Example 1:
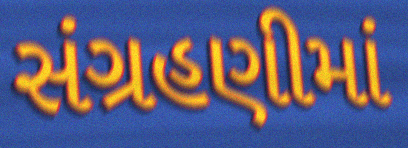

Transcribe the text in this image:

સંગ્રહણીમાં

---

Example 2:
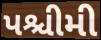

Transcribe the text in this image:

પશ્ચીમી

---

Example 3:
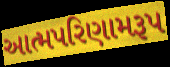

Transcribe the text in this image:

આત્મપરિણામરૂપ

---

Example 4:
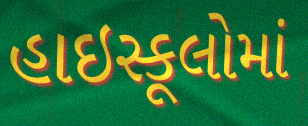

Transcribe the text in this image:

હાઇસ્કૂલોમાં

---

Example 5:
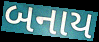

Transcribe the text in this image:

બનાય